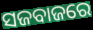
ସଜବାଜରେ